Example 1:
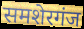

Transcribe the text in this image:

समशेरगंज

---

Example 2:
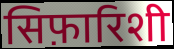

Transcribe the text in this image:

सिफ़ारिशी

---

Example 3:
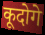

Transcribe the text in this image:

कूदोगे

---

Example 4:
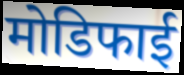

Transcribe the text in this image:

मोडिफाई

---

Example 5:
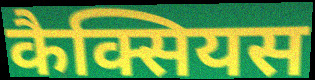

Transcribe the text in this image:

कैक्सियस